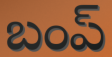
బంప్